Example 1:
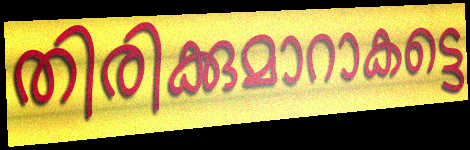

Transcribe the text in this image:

തിരിക്കുമാറാകട്ടെ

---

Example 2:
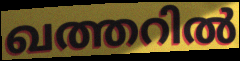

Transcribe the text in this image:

ഖത്തറിൽ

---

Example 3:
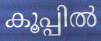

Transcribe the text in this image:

കൂപ്പിൽ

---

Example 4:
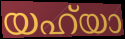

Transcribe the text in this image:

യഹ്‌യാ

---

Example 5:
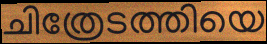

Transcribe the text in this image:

ചിത്രേടത്തിയെ